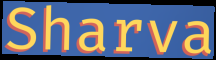
Sharva